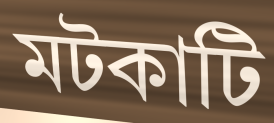
মটকাটি